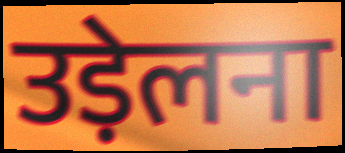
उड़ेलना